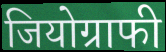
जियोग्राफी